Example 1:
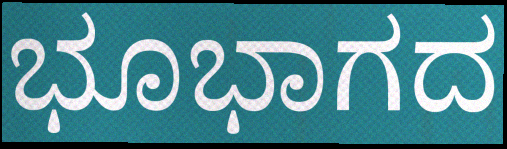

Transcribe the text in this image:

ಭೂಭಾಗದ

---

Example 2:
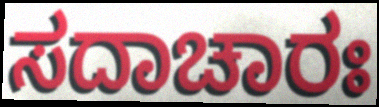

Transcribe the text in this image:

ಸದಾಚಾರಃ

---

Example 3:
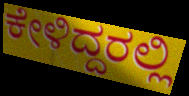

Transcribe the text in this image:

ಕೇಳಿದ್ದರಲ್ಲಿ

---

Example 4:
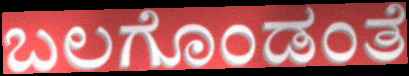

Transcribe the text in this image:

ಬಲಗೊಂಡಂತೆ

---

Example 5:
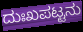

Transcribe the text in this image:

ದುಃಖಪಟ್ಟನು